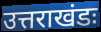
उत्तराखंडः